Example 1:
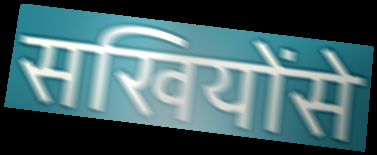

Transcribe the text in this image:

सखियोंसे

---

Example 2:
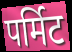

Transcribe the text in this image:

पर्मिट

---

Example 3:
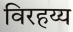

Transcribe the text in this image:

विरहय्य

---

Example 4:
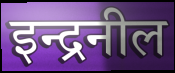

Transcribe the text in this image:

इन्द्रनील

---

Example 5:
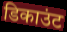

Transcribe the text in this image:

डिकाउंट